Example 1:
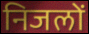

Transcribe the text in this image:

निजलों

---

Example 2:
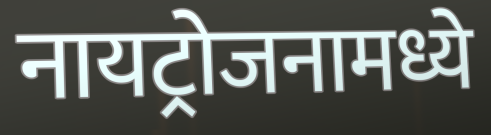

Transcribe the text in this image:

नायट्रोजनामध्ये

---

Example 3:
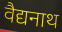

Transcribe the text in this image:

वैद्यनाथ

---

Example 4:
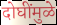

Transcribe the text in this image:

दोघींमुळे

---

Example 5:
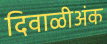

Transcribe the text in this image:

दिवाळीअंक